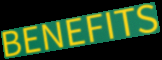
BENEFITS